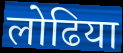
लोढिया